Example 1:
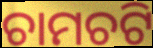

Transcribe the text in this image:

ଚାମଚଟି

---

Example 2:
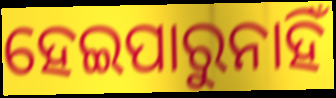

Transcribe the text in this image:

ହେଇପାରୁନାହିଁ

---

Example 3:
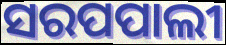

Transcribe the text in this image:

ସରପପାଲୀ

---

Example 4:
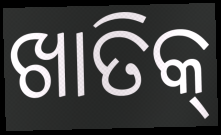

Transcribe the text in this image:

ଖାତିକ୍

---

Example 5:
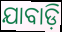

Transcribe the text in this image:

ଯାବାଡ଼ି